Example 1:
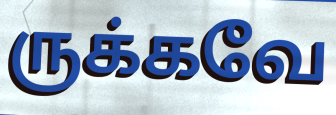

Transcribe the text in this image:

ருக்கவே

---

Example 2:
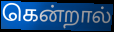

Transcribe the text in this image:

கென்றால்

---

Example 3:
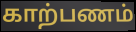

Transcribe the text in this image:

காற்பணம்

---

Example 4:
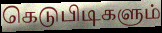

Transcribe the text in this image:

கெடுபிடிகளும்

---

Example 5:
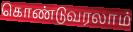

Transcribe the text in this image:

கொண்டுவரலாம்